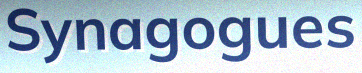
Synagogues